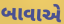
બાવાએ